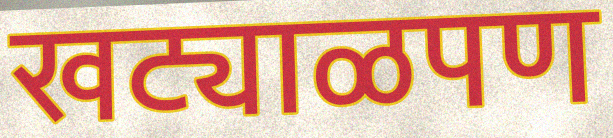
खट्याळपण